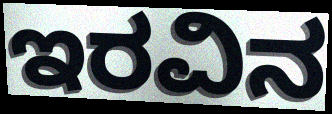
ಇರವಿನ